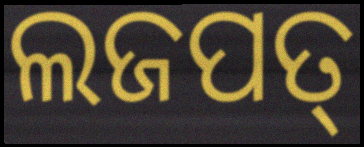
ଲଜପତ୍